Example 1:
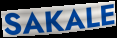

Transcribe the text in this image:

SAKALE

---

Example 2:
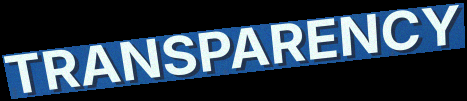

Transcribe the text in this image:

TRANSPARENCY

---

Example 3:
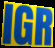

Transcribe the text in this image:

IGR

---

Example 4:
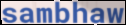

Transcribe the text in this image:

sambhaw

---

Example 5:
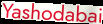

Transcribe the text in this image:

Yashodabai